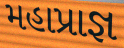
મહાપ્રાજ્ઞ